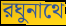
রঘুনাথে